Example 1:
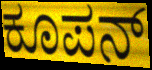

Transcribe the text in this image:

ಕೂಪನ್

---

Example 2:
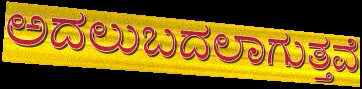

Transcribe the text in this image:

ಅದಲುಬದಲಾಗುತ್ತವೆ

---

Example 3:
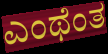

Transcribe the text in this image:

ಎಂಥೆಂತ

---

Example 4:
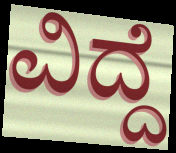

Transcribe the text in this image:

ವಿದ್ದೆ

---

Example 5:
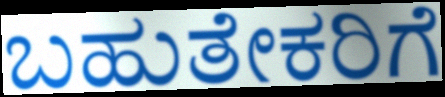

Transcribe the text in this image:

ಬಹುತೇಕರಿಗೆ